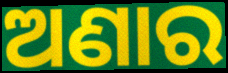
ଅଣାର